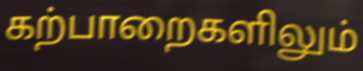
கற்பாறைகளிலும்